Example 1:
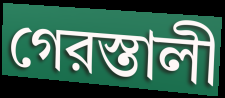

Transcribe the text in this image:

গেরস্তালী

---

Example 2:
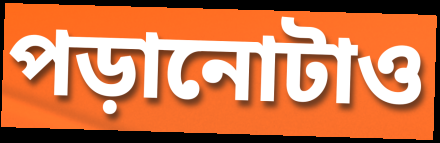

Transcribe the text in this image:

পড়ানোটাও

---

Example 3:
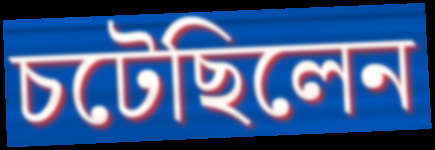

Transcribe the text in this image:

চটেছিলেন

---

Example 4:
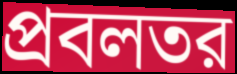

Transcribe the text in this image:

প্রবলতর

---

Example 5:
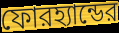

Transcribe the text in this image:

ফোরহ্যান্ডের